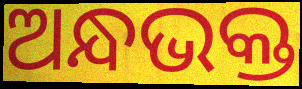
ଅନ୍ଧଭକ୍ତ